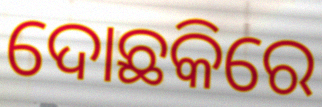
ଦୋଛକିରେ